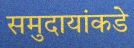
समुदायांकडे